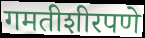
गमतीशीरपणे